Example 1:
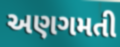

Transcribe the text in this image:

અણગમતી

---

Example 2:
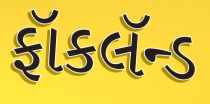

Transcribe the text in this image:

ફૉકલૅન્ડ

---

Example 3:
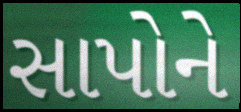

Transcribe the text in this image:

સાપોને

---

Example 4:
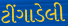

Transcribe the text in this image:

ટીંગાડેલી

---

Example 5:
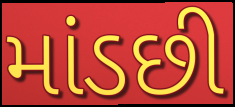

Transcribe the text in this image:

માંડછી